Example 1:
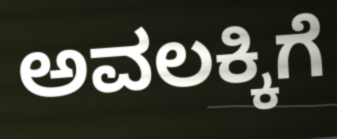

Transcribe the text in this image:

ಅವಲಕ್ಕಿಗೆ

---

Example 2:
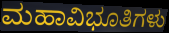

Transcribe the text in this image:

ಮಹಾವಿಭೂತಿಗಳು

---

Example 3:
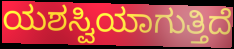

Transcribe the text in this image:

ಯಶಸ್ವಿಯಾಗುತ್ತಿದೆ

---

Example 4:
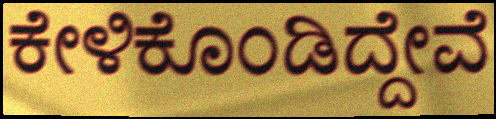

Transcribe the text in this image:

ಕೇಳಿಕೊಂಡಿದ್ದೇವೆ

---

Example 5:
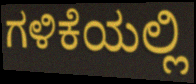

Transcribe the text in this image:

ಗಳಿಕೆಯಲ್ಲಿ